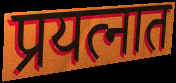
प्रयत्नात